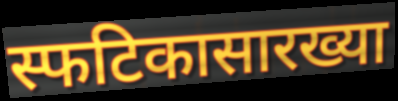
स्फटिकासारख्या